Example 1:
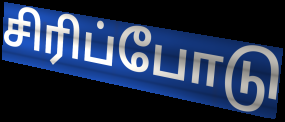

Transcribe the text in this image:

சிரிப்போடு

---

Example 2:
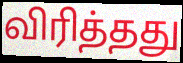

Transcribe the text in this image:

விரித்தது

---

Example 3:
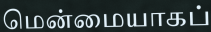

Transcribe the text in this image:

மென்மையாகப்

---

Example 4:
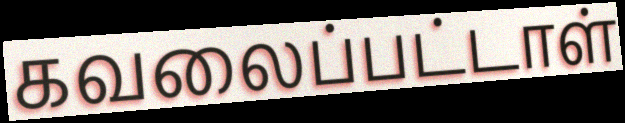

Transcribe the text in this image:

கவலைப்பட்டாள்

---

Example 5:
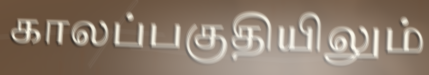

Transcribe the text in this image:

காலப்பகுதியிலும்